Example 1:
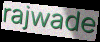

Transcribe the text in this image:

rajwade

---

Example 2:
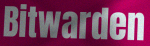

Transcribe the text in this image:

Bitwarden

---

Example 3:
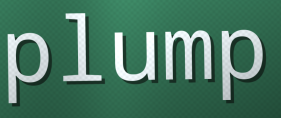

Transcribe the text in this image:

plump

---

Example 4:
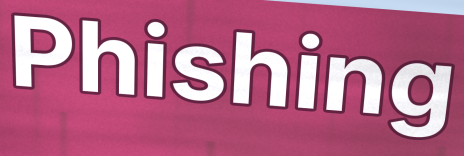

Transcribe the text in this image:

Phishing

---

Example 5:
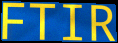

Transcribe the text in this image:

FTIR